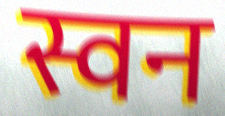
स्वन